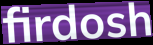
firdosh